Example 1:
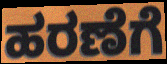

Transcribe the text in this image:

ಹರಣೆಗೆ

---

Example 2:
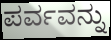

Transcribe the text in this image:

ಪರ್ವವನ್ನು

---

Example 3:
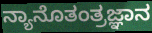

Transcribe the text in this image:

ನ್ಯಾನೊತಂತ್ರಜ್ಞಾನ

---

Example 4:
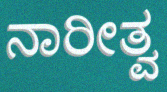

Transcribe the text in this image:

ನಾರೀತ್ವ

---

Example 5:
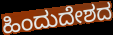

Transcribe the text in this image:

ಹಿಂದುದೇಶದ